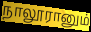
நாலூரானும்